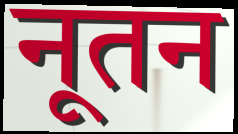
नूतन